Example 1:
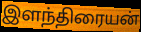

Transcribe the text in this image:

இளந்திரையன்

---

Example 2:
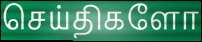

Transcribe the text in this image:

செய்திகளோ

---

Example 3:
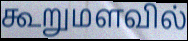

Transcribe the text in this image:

கூறுமளவில்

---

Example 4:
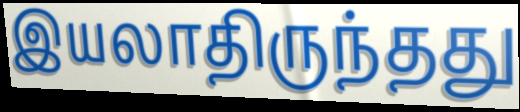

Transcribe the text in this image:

இயலாதிருந்தது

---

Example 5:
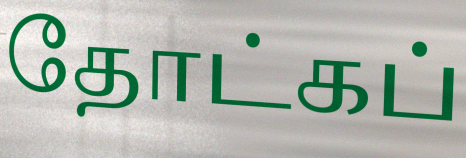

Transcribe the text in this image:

தோட்கப்